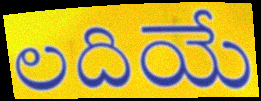
లదియే